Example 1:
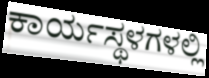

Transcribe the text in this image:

ಕಾರ್ಯಸ್ಥಳಗಳಲ್ಲಿ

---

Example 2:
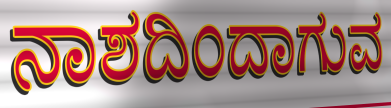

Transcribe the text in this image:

ನಾಶದಿಂದಾಗುವ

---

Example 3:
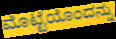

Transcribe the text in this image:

ಮೊಟ್ಟೆಯೊಂದನ್ನು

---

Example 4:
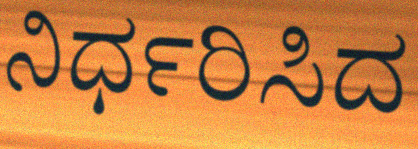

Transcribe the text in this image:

ನಿರ್ಧರಿಸಿದ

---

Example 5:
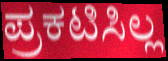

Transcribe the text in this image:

ಪ್ರಕಟಿಸಿಲ್ಲ